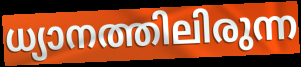
ധ്യാനത്തിലിരുന്ന